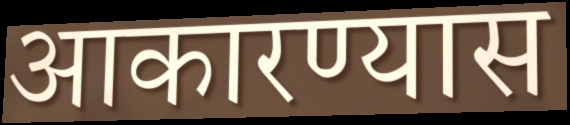
आकारण्यास